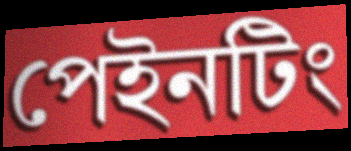
পেইনটিং